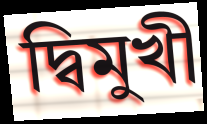
দ্বিমুখী